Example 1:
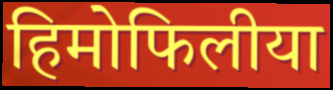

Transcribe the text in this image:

हिमोफिलीया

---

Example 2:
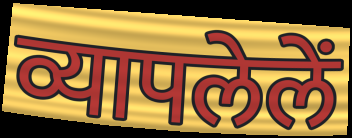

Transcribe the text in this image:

व्यापलेलें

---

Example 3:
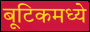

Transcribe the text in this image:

बूटिकमध्ये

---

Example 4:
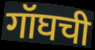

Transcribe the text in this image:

गॉघची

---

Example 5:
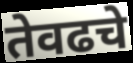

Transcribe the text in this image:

तेवढचे